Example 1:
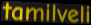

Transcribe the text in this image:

tamilveli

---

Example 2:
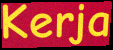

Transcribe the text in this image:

Kerja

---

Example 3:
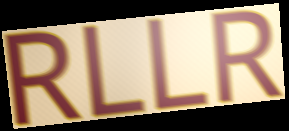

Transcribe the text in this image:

RLLR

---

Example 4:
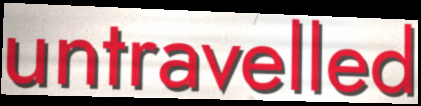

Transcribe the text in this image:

untravelled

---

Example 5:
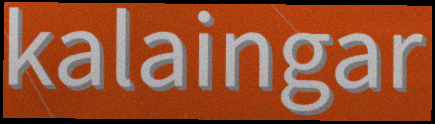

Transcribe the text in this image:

kalaingar